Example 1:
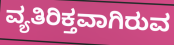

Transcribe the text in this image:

ವ್ಯತಿರಿಕ್ತವಾಗಿರುವ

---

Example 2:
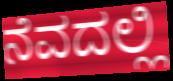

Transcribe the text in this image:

ನೆವದಲ್ಲಿ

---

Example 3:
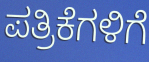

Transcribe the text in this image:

ಪತ್ರಿಕೆಗಳಿಗೆ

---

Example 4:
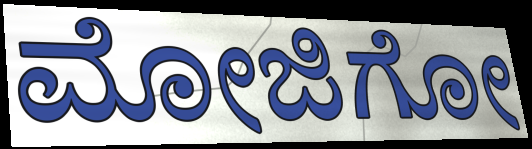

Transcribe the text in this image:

ಮೋಜಿಗೋ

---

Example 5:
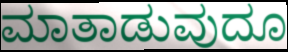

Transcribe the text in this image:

ಮಾತಾಡುವುದೂ